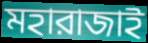
মহারাজাই